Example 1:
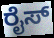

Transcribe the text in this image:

ರೈಸ್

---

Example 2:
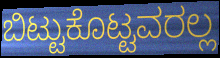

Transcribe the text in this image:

ಬಿಟ್ಟುಕೊಟ್ಟವರಲ್ಲ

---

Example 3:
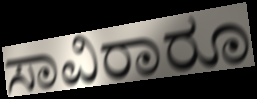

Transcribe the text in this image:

ಸಾವಿರಾರೂ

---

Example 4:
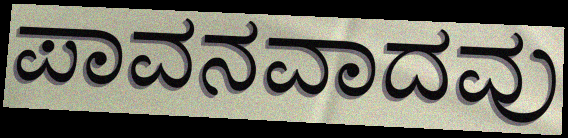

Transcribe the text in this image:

ಪಾವನವಾದವು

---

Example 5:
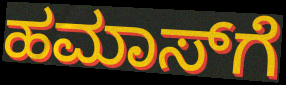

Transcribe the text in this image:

ಹಮಾಸ್‌ಗೆ